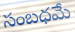
సంబధమే